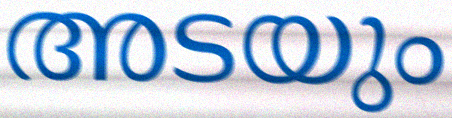
അടയും